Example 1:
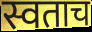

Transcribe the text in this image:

स्वताच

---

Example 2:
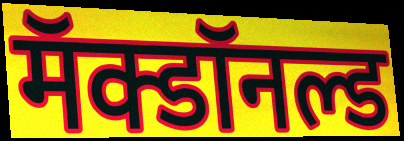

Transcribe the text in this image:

मॅक्डॉनल्ड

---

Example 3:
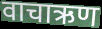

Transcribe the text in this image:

वाचाऋण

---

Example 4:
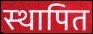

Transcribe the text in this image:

स्थापित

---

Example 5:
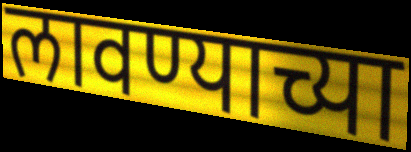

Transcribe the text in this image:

लावण्याच्या